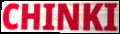
CHINKI